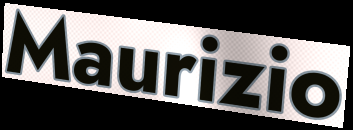
Maurizio